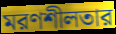
মরণশীলতার